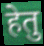
हेतु